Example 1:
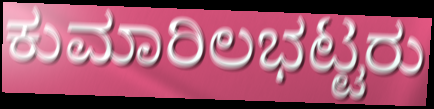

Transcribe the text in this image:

ಕುಮಾರಿಲಭಟ್ಟರು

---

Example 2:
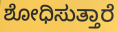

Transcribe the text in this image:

ಶೋಧಿಸುತ್ತಾರೆ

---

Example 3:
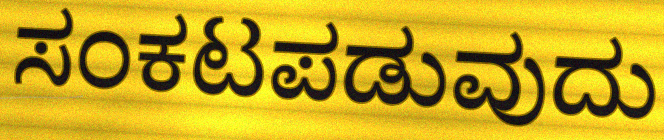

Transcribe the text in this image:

ಸಂಕಟಪಡುವುದು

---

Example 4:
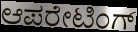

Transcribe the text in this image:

ಆಪರೇಟಿಂಗ್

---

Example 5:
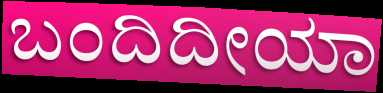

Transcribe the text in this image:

ಬಂದಿದೀಯಾ